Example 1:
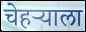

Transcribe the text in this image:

चेहऱ्याला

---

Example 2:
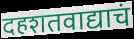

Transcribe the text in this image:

दहशतवाद्याचं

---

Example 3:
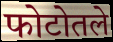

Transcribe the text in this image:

फोटोतले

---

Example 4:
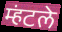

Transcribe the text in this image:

म्हंटले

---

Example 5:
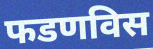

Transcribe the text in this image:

फडणविस